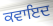
ਕਵਾਇਦ